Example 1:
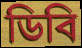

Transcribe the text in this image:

ডিবি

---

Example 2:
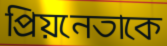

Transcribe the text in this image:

প্রিয়নেতাকে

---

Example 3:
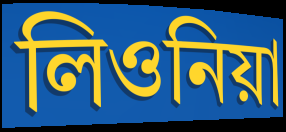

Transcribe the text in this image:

লিওনিয়া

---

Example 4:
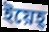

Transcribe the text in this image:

ইয়েহ্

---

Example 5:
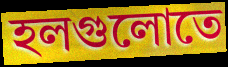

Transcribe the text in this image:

হলগুলোতে